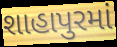
શાહાપુરમાં